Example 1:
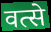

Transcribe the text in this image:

वत्से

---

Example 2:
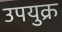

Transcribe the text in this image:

उपयुक्र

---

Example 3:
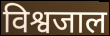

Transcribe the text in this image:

विश्वजाल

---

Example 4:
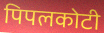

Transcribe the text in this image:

पिपलकोटी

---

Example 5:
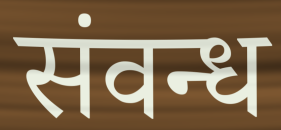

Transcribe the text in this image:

संवन्ध